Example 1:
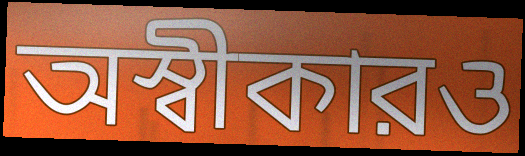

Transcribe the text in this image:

অস্বীকারও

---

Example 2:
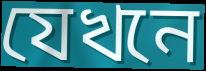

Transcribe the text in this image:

যেখনে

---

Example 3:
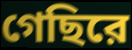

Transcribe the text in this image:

গেছিরে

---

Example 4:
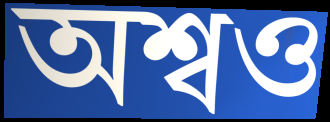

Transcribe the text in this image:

অশ্বও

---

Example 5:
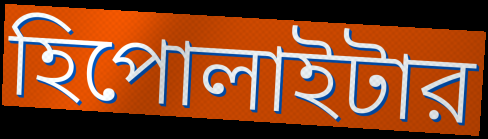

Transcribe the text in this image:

হিপোলাইটার